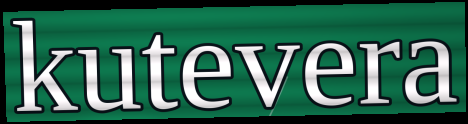
kutevera